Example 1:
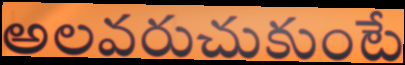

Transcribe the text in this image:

అలవరుచుకుంటే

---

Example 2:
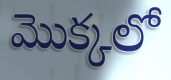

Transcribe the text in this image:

మొక్కలో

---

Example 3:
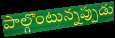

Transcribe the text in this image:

పాల్గొంటున్నప్పుడు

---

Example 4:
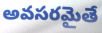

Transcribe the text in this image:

అవసరమైతే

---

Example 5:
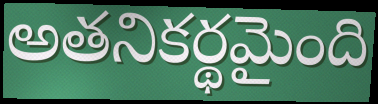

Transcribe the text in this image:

అతనికర్థమైంది